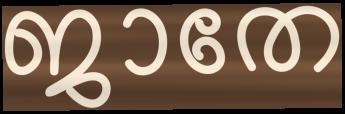
ജാതേ